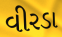
વીરડા